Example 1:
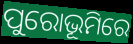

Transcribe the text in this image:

ପୁରୋଭୂମିରେ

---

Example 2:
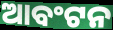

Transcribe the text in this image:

ଆବଂଟନ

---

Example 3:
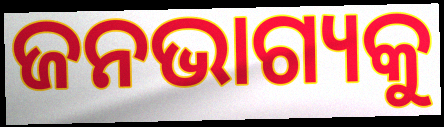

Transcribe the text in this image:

ଜନଭାଗ୍ୟକୁ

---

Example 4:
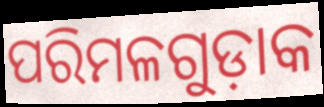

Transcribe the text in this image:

ପରିମଳଗୁଡ଼ାକ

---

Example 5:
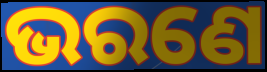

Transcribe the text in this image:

ଭରଣେ